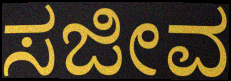
ಸಜೀವ